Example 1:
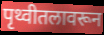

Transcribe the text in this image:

पृथ्वीतलावरून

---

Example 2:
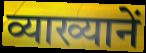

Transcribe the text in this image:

व्याख्यानें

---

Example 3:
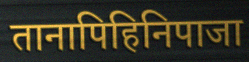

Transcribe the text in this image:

तानापिहिनिपाजा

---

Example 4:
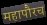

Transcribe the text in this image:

महापौरच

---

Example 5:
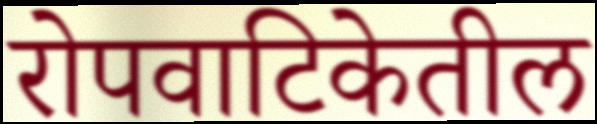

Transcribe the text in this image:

रोपवाटिकेतील